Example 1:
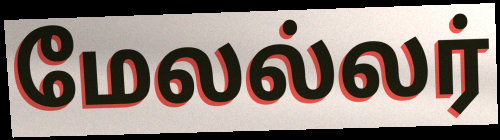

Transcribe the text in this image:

மேலல்லர்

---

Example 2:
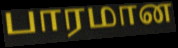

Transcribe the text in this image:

பாரமான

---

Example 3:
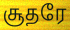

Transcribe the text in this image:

சூதரே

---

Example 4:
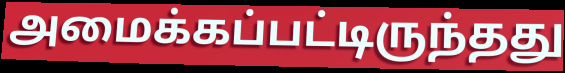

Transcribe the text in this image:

அமைக்கப்பட்டிருந்தது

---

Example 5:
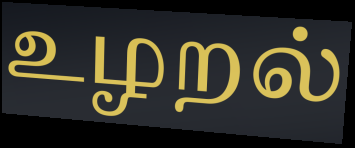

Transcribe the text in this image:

உழறல்